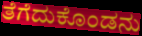
ತೆಗೆದುಕೊಂಡನು